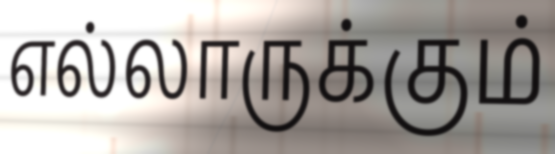
எல்லாருக்கும்